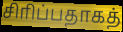
சிரிப்பதாகத்